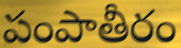
పంపాతీరం